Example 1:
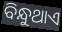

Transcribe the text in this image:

ବିନ୍ଧୁଥାଏ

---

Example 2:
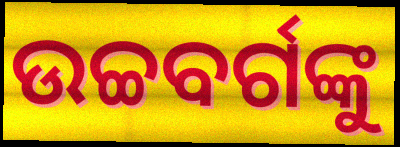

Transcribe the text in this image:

ଉଚ୍ଚବର୍ଗଙ୍କୁ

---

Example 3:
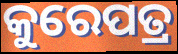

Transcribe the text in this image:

କୁରେପତ୍ର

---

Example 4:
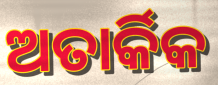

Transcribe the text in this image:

ଅତାର୍କିକ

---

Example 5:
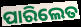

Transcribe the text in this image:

ପାରିଲେତ